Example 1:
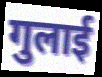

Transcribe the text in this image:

गुलाई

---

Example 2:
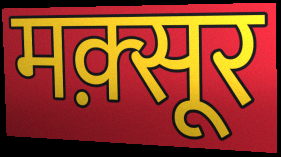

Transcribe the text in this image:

मक़्सूर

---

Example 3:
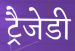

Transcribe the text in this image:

ट्रैजेडी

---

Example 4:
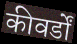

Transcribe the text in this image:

कीवर्डों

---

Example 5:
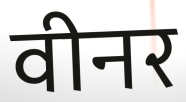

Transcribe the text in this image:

वीनर